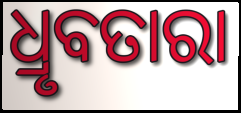
ଧ୍ରୃବତାରା